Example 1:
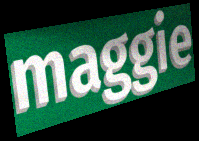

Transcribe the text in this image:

maggie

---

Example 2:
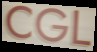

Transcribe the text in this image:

CGL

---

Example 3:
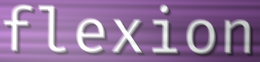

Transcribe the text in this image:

flexion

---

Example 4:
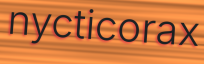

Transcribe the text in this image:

nycticorax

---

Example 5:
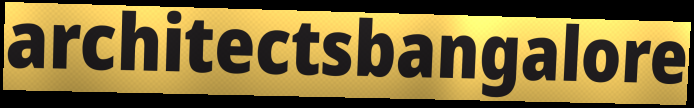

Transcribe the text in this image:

architectsbangalore